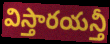
విస్తారయన్తీ